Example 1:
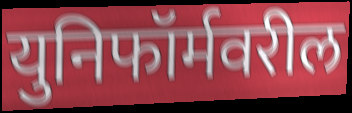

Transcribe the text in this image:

युनिफॉर्मवरील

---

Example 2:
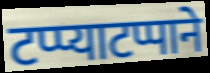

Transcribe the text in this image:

टप्प्याटप्पाने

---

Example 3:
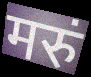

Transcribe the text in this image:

मरुं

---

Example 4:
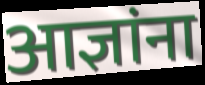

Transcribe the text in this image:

आज्ञांना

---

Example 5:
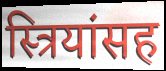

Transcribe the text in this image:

स्त्रियांसह